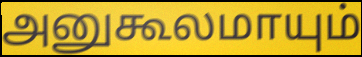
அனுகூலமாயும்